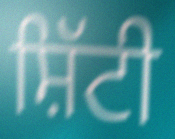
ਸ਼ਿੱਟੀ